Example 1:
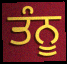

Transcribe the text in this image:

ਤੰਨੂ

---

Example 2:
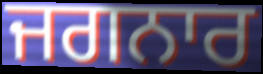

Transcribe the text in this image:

ਜਗਨਾਰ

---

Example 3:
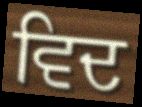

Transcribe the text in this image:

ਵਿਦ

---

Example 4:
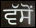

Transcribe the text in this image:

ਵੱਸੋਂ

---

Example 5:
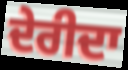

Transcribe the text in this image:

ਦੇਰੀਦਾ